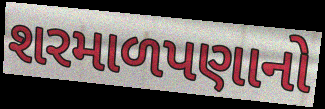
શરમાળપણાનો